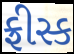
ફ્રીસ્ક